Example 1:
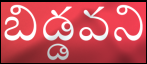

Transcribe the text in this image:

బిడ్డవని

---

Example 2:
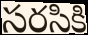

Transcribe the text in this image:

సరసికి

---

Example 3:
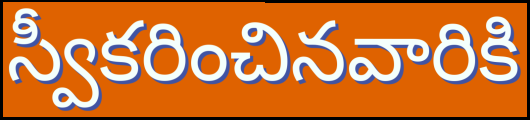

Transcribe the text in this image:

స్వీకరించినవారికి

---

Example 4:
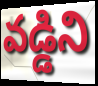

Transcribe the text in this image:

వడ్డిని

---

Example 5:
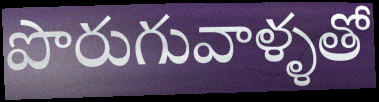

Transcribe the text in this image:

పొరుగువాళ్ళతో